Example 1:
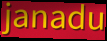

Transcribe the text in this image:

janadu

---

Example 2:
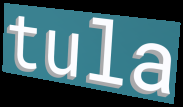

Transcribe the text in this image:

tula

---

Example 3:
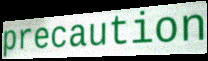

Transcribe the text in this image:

precaution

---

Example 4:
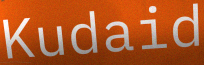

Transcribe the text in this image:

Kudaid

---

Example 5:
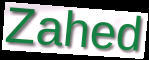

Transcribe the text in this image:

Zahed